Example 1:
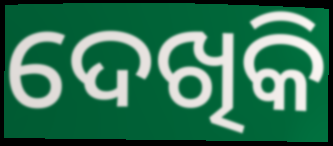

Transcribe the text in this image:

ଦେଖିକି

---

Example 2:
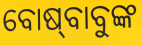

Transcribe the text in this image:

ବୋଷ୍‍ବାବୁଙ୍କ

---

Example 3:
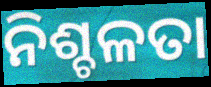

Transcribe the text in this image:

ନିଶ୍ଚଳତା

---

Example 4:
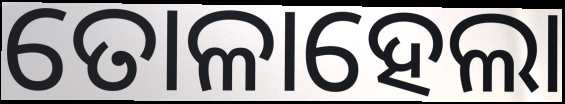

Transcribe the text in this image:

ତୋଳାହେଲା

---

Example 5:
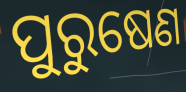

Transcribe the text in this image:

ପୁରୁଷେଣ